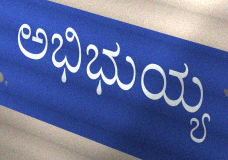
ಅಭಿಭುಯ್ಯ